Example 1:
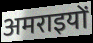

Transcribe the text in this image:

अमराइयों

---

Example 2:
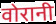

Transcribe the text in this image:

वोरानी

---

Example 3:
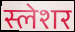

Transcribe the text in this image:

स्लेशर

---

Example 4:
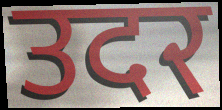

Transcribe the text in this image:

उदर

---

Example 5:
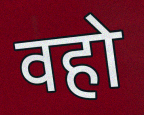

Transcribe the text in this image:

वहो